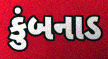
કુંબનાડ